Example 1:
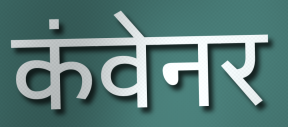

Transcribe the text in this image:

कंवेनर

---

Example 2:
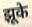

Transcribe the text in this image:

झूके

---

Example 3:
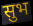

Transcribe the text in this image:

सुभ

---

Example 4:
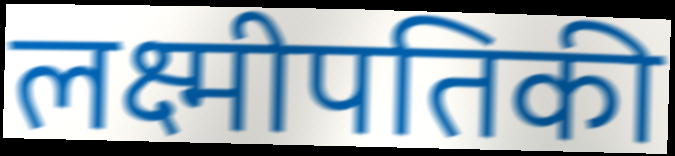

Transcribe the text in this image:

लक्ष्मीपतिकी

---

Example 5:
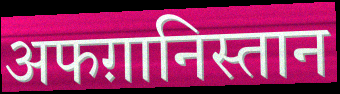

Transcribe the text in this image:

अफग़ानिस्तान